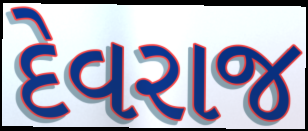
દેવરાજ